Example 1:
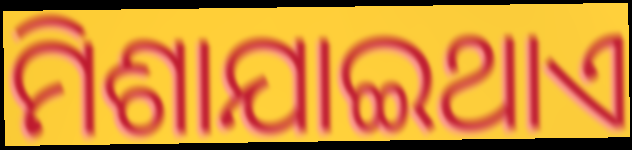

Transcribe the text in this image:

ମିଶାଯାଇଥାଏ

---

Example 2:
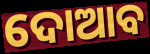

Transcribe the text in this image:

ଦୋଆବ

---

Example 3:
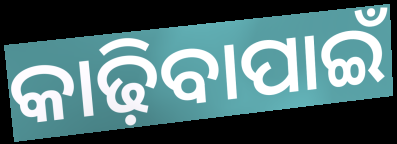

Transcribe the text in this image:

କାଢ଼ିବାପାଇଁ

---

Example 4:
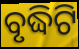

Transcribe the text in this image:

ବୃଦ୍ଧିଟି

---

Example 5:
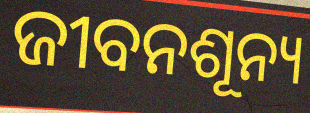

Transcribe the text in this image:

ଜୀବନଶୂନ୍ୟ